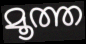
മൂത്ത